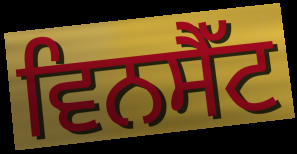
ਵਿਨਸੈੱਟ